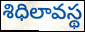
శిధిలావస్థ